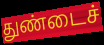
துண்டைச்